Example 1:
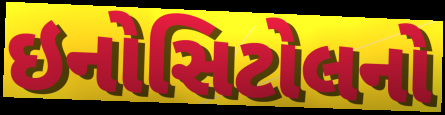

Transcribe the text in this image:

ઇનોસિટોલનો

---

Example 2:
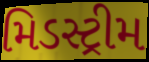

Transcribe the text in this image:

મિડસ્ટ્રીમ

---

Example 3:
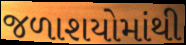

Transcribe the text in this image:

જળાશયોમાંથી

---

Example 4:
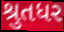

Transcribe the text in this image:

શ્રુતધર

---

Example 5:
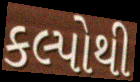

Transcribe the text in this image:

કલ્પોથી